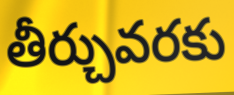
తీర్చువరకు